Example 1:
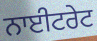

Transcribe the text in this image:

ਨਾਈਟਰੇਟ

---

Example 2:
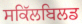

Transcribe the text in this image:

ਸਕਿੱਲਬਿਲਡ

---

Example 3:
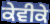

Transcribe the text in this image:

ਕੇਵੀਕੇ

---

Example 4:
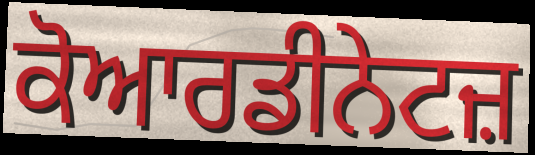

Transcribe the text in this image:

ਕੋਆਰਡੀਨੇਟਜ਼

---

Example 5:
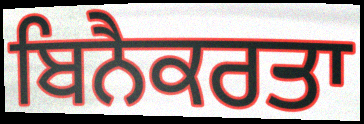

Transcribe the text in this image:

ਬਿਨੈਕਰਤਾ